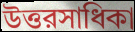
উত্তরসাধিকা